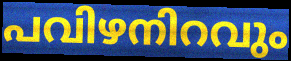
പവിഴനിറവും